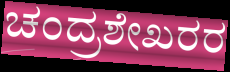
ಚಂದ್ರಶೇಖರರ